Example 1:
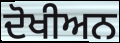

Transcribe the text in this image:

ਦੋਖੀਅਨ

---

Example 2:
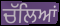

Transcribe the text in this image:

ਚੱਲਿਆਂ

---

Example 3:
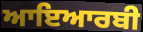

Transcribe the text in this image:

ਆਇਆਰਬੀ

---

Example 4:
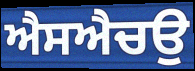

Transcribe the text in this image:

ਐਸਐਚਉ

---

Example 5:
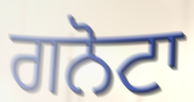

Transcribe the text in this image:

ਗਨੋਟਾ